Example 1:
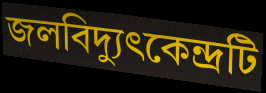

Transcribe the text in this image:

জলবিদ্যুৎকেন্দ্রটি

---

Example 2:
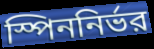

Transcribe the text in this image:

স্পিননির্ভর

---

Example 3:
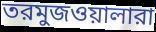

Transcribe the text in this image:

তরমুজওয়ালারা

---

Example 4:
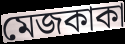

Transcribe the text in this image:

মেজকাকা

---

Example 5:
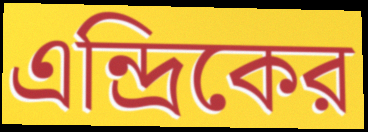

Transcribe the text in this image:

এন্দ্রিকের